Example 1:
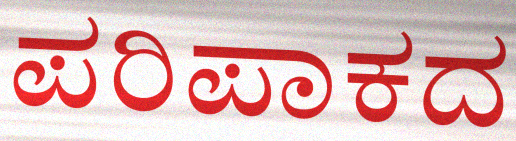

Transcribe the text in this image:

ಪರಿಪಾಕದ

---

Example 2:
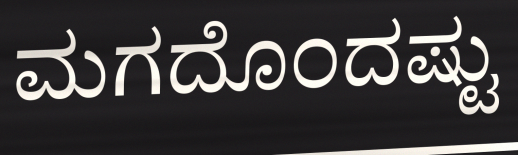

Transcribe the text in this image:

ಮಗದೊಂದಷ್ಟು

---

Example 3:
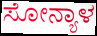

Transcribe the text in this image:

ಸೋನ್ಯಾಳ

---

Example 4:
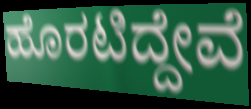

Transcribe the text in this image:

ಹೊರಟಿದ್ದೇವೆ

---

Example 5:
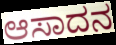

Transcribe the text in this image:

ಆಸಾದನ